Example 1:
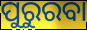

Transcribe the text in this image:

ପୁରୁରବା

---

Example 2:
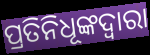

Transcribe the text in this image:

ପ୍ରତିନିଧୂଙ୍କଦ୍ଵାରା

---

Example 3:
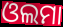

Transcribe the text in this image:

ଓଲମା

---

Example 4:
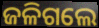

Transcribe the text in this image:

ଜଳିଗଲେ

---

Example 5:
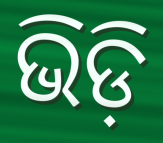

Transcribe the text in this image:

ଭିଡ଼ି